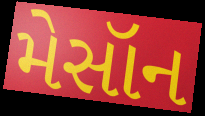
મેસૉન